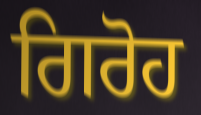
ਗਿਰੋਹ